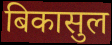
बिकासुल